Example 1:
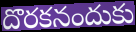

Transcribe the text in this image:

దొరకనందుకు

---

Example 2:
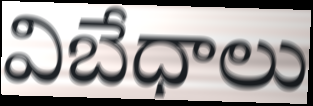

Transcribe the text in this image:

విబేధాలు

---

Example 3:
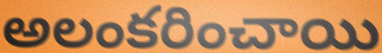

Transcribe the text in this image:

అలంకరించాయి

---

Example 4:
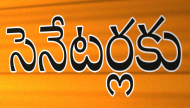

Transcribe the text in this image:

సెనేటర్లకు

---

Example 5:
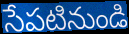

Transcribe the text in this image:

సేపటినుండి